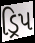
ડ્રિપ